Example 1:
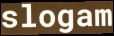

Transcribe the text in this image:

slogam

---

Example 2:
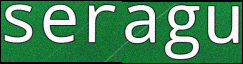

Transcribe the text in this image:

seragu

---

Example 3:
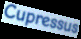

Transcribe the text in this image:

Cupressus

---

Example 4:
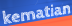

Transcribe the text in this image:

kematian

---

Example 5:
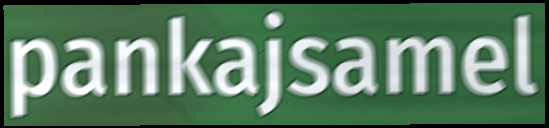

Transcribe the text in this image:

pankajsamel